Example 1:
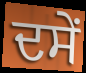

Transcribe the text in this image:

ਦਸੇਂ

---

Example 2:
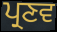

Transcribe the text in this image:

ਪ੍ਰਣਵ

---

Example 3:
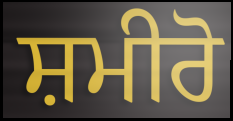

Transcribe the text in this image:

ਸ਼ਮੀਰੋ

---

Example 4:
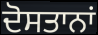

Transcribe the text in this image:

ਦੋਸਤਾਨਾਂ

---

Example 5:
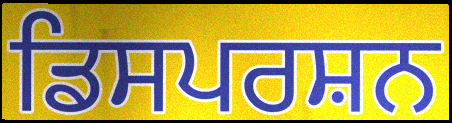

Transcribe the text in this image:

ਡਿਸਪਰਸ਼ਨ